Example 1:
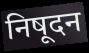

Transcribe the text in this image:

निषूदन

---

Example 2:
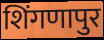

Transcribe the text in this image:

शिंगणापुर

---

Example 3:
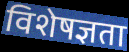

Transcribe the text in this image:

विशेषज्ञता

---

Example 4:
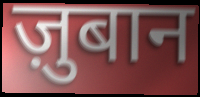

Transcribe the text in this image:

ज़ुबान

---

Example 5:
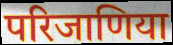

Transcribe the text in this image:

परिजाणिया